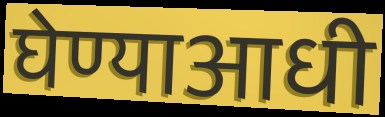
घेण्याआधी